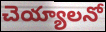
చెయ్యాలనో